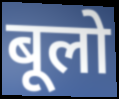
बूलो